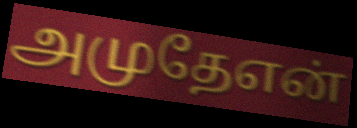
அமுதேஎன்